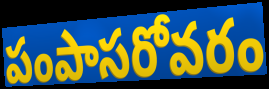
పంపాసరోవరం